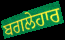
ਬਗਲੇਹਾਰ